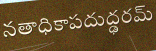
నతాధికాపదుద్ఢరమ్